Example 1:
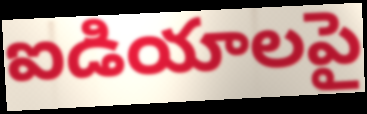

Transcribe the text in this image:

ఐడియాలపై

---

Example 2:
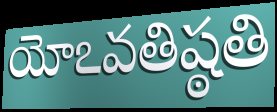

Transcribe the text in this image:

యోఽవతిష్ఠతి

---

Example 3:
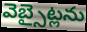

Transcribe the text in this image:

వెబ్సైట్లను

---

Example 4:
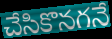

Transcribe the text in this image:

చేసికొనగనే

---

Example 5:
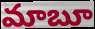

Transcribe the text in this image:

మాబూ